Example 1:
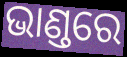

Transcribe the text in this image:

ଭାଣ୍ଡରେ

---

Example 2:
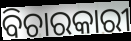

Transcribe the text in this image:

ବିଚାରକାରୀ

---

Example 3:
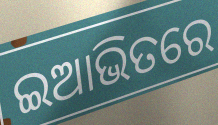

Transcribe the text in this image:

ଇଆଭିତରେ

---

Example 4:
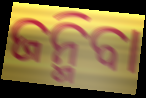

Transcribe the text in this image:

ଜନ୍ମିବା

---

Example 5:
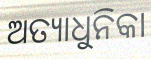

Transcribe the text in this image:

ଅତ୍ୟାଧୁନିକା